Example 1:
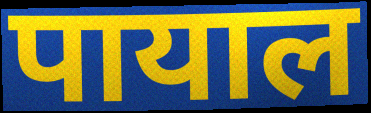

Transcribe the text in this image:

पायाल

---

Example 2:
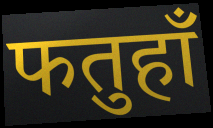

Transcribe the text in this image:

फतुहाँ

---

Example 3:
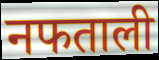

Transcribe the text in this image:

नफताली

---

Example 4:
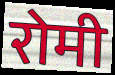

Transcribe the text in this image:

रोमी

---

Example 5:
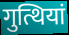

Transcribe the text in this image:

गुत्थियां